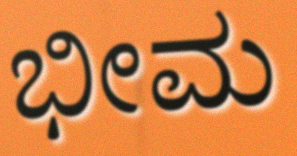
ಭೀಮ